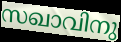
സഖാവിനു